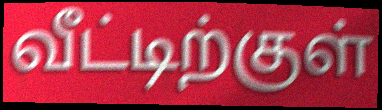
வீட்டிற்குள்